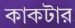
কাকটার